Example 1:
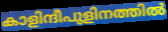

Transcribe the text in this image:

കാളിന്ദീപുളിനത്തിൽ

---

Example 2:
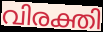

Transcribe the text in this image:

വിരക്തി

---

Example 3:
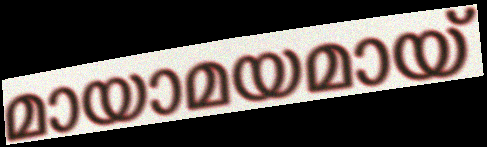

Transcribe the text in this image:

മായാമയമായ്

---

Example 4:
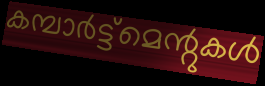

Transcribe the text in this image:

കമ്പാർട്ട്മെന്റുകൾ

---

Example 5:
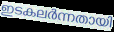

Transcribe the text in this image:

ഇടകലർന്നതായി